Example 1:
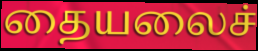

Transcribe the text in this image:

தையலைச்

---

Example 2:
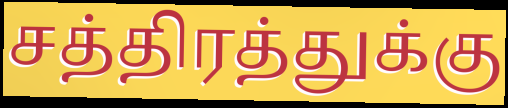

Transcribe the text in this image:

சத்திரத்துக்கு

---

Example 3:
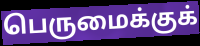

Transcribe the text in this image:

பெருமைக்குக்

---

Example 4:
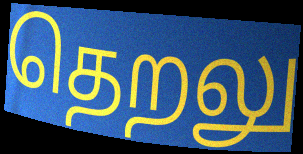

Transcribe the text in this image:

தெறலு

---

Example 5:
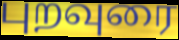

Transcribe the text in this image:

புறவுரை